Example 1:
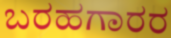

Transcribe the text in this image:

ಬರಹಗಾರರ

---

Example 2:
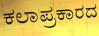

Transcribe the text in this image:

ಕಲಾಪ್ರಕಾರದ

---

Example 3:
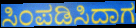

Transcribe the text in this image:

ಸಿಂಪಡಿಸಿದಾಗ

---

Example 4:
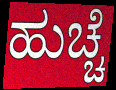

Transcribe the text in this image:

ಹುಚ್ಚೆ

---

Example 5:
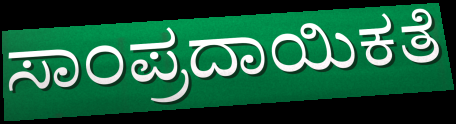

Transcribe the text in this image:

ಸಾಂಪ್ರದಾಯಿಕತೆ